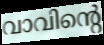
വാവിന്റെ